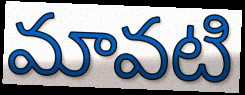
మావటి